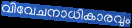
വിവേചനാധികാരവും